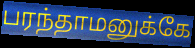
பரந்தாமனுக்கே